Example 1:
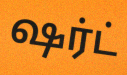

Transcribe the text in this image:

ஷர்ட்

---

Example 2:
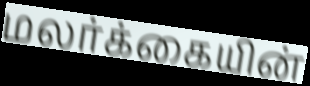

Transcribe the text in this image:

மலர்க்கையின்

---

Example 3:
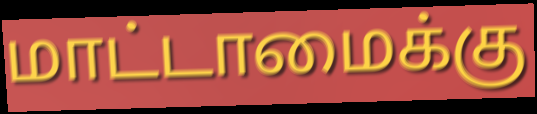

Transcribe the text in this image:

மாட்டாமைக்கு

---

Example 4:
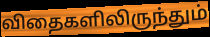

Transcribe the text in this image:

விதைகளிலிருந்தும்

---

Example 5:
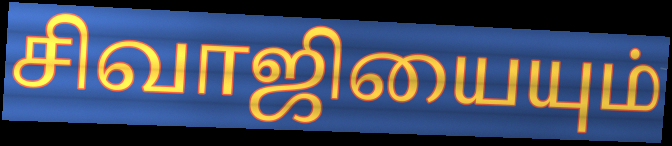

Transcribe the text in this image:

சிவாஜியையும்